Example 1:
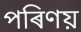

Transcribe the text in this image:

পৰিণয়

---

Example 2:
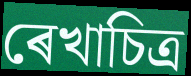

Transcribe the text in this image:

ৰেখাচিত্ৰ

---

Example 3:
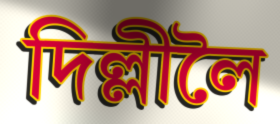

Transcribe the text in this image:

দিল্লীলৈ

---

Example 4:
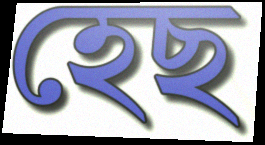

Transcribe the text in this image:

হেছ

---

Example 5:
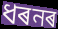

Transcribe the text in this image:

ধৰনৰ